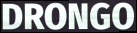
DRONGO